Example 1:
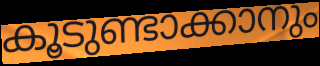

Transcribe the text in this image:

കൂടുണ്ടാക്കാനും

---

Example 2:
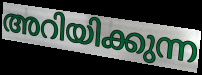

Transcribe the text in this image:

അറിയിക്കുന്ന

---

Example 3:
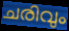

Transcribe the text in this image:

ചരിവും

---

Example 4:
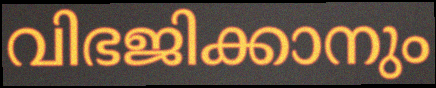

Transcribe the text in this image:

വിഭജിക്കാനും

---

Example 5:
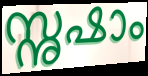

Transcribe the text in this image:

സ്നുഷാം